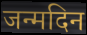
जन्मदिन